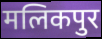
मलिकपुर